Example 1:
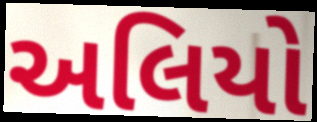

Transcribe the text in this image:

અલિયો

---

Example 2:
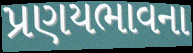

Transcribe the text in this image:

પ્રણયભાવના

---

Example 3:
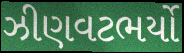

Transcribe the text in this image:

ઝીણવટભર્યો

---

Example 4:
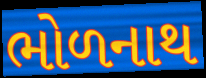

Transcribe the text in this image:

ભોળનાથ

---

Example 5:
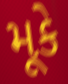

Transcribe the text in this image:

મૂકે